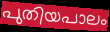
പുതിയപാലം